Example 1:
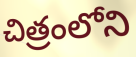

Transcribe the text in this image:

చిత్రంలోని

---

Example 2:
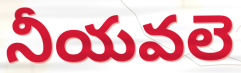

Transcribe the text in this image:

నీయవలె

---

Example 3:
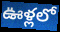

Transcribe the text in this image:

ఊళ్లలో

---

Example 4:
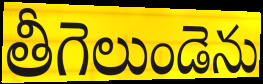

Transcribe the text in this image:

తీగెలుండెను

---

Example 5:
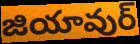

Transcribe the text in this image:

జియావుర్